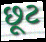
છૂટ